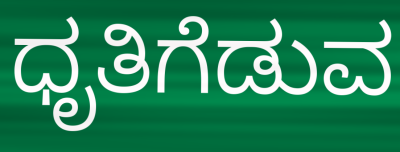
ಧೃತಿಗೆಡುವ